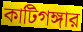
কাটিগঙ্গার